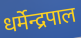
धर्मेन्द्रपाल